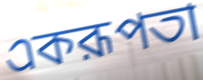
একরূপতা